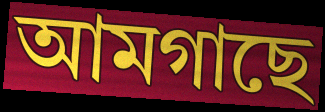
আমগাছে